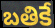
బతికే